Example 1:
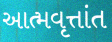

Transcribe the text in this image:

આત્મવૃત્તાંત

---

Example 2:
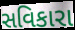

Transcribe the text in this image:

સવિકારા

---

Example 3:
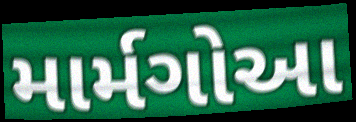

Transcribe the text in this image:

માર્મગોઆ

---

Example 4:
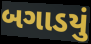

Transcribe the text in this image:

બગાડયું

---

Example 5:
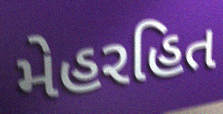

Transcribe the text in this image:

મેહરહિત